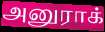
அனுராக்